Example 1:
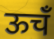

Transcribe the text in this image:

ऊचँ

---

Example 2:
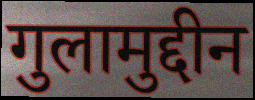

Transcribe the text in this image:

गुलामुद्दीन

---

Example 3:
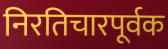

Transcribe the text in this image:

निरतिचारपूर्वक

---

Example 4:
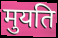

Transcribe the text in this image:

मुयति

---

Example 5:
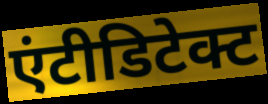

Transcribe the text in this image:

एंटीडिटेक्ट